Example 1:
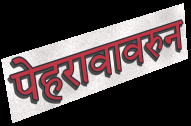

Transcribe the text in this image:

पेहरावावरुन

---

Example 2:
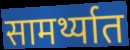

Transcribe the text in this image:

सामर्थ्यात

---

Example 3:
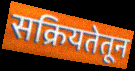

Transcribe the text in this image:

सक्रियतेतून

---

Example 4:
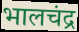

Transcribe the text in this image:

भालचंद्र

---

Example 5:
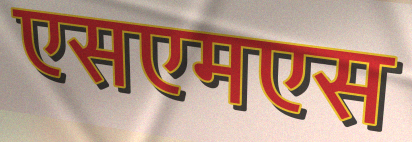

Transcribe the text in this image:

एसएमएस